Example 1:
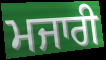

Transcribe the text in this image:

ਮਜਾਰੀ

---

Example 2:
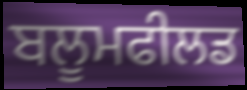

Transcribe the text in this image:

ਬਲੂਮਫੀਲਡ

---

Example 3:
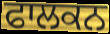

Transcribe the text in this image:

ਫਾਲਕਨ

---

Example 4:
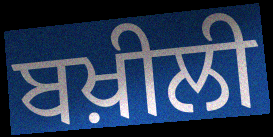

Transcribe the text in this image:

ਬਖ਼ੀਲੀ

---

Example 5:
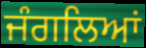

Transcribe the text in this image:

ਜੰਗਲਿਆਂ